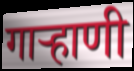
गार्‍हाणी